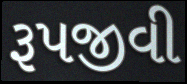
રૂપજીવી